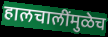
हालचालींमुळेच